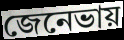
জেনেভায়